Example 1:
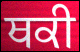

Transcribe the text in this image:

ਥਕੀ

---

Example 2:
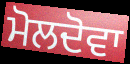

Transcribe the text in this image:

ਮੋਲਦੋਵਾ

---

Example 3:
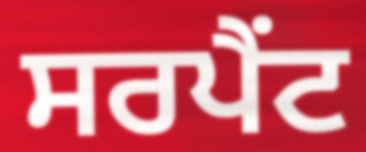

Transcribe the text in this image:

ਸਰਪੈਂਟ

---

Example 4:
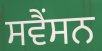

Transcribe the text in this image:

ਸਵੈਂਸਨ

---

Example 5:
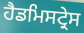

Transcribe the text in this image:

ਹੈਡਮਿਸਟ੍ਰੇਸ